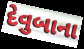
દેવુબાના